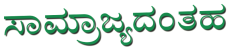
ಸಾಮ್ರಾಜ್ಯದಂತಹ